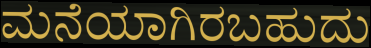
ಮನೆಯಾಗಿರಬಹುದು